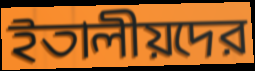
ইতালীয়দের